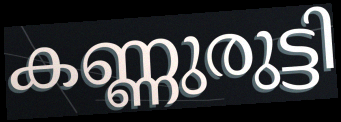
കണ്ണുരുട്ടി